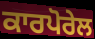
ਕਾਰਪੋਰੇਲ